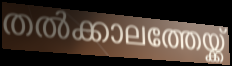
തൽക്കാലത്തേയ്ക്ക്